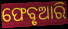
ଫେବୃଆରି